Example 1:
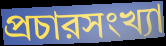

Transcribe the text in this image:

প্রচারসংখ্যা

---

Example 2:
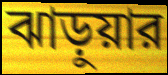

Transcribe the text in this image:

ঝাড়ুয়ার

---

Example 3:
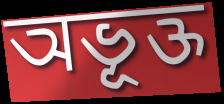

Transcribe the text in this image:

অভূক্ত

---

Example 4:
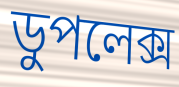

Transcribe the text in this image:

ডুপলেক্স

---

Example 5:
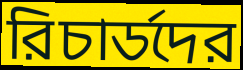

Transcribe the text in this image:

রিচার্ডদের